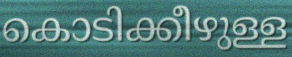
കൊടിക്കീഴുള്ള